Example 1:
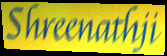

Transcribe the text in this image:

Shreenathji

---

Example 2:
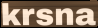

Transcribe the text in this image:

krsna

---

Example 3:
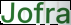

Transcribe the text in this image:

Jofra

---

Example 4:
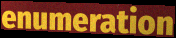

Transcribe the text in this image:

enumeration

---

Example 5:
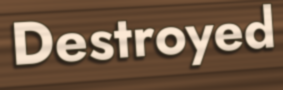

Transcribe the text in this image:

Destroyed